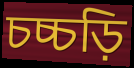
চচ্চড়ি